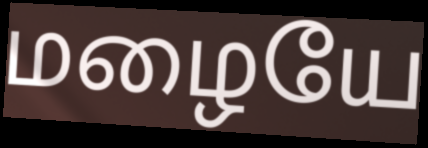
மழையே